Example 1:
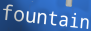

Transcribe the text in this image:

fountain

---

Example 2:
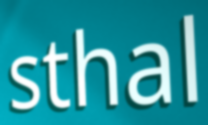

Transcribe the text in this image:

sthal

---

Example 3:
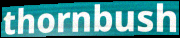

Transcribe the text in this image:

thornbush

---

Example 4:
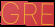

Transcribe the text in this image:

GRE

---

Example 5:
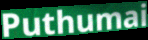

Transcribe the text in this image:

Puthumai